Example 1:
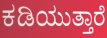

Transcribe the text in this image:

ಕಡಿಯುತ್ತಾರೆ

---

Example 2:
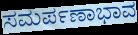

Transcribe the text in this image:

ಸಮರ್ಪಣಾಭಾವ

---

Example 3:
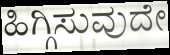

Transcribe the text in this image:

ಹಿಗ್ಗಿಸುವುದೇ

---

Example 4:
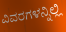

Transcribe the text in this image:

ವಿವರಗಳನ್ನಿಲ್ಲಿ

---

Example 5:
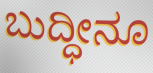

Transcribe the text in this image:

ಬುದ್ಧೀನೂ